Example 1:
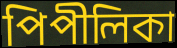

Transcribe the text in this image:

পিপীলিকা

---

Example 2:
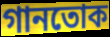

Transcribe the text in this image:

গানতোক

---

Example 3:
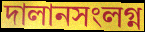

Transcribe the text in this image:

দালানসংলগ্ন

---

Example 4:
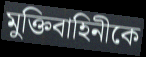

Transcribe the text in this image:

মুক্তিবাহিনীকে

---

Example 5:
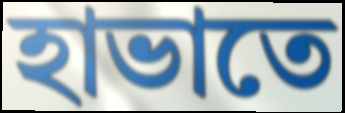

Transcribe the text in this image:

হাভাতে